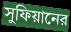
সুফিয়ানের